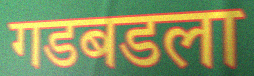
गडबडला